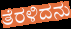
ತೆರಳಿದನು